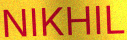
NIKHIL